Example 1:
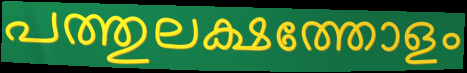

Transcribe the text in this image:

പത്തുലക്ഷത്തോളം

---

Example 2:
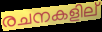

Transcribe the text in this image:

രചനകളില്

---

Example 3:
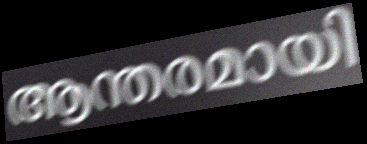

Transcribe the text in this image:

ആന്തരമായി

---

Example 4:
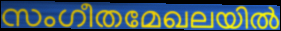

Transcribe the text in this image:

സംഗീതമേഖലയിൽ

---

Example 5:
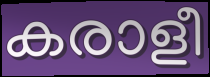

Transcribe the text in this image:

കരാളീ